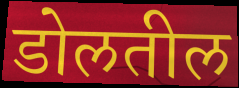
डोलतील